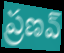
ప్రణవ్